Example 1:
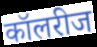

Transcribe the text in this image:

कॉलरीज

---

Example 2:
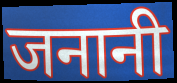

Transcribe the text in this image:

जनानी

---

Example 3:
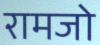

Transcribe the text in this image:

रामजो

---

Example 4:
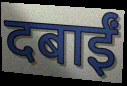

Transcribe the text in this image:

दबाईं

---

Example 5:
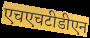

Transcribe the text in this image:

एचएचटीडीएन